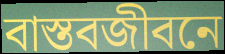
বাস্তবজীবনে